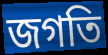
জগতি